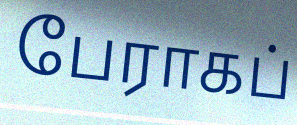
பேராகப்